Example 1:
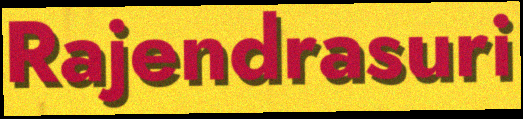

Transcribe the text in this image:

Rajendrasuri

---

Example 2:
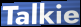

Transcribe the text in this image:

Talkie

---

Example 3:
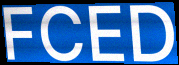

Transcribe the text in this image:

FCED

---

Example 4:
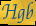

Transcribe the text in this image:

Hgb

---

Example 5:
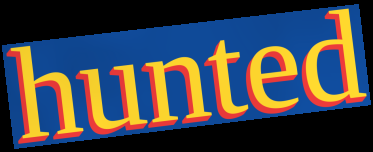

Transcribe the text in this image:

hunted